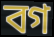
বগ